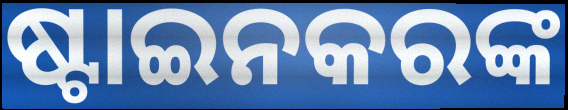
ଷ୍ଟାଇନକରଙ୍କ